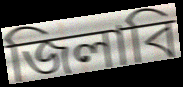
জিলাবি